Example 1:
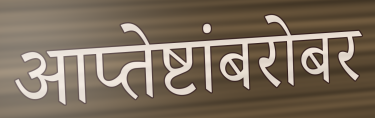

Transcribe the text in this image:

आप्तेष्टांबरोबर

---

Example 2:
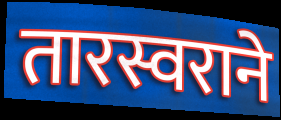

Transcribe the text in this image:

तारस्वराने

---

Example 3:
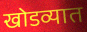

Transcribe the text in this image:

खोडव्यात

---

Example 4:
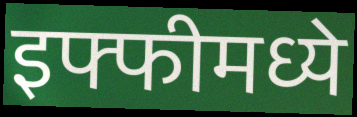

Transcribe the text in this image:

इफ्फीमध्ये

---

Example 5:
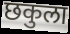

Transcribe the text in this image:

छकुला